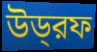
উড্‌রফ